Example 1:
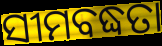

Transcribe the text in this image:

ସୀମବଦ୍ଧତା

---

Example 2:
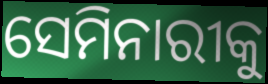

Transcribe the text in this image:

ସେମିନାରୀକୁ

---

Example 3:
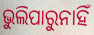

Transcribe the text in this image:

ଭୁଲିପାରୁନାହିଁ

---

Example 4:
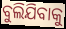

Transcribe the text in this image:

ବୁଲିଯିବାକୁ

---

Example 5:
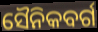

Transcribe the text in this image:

ସୈନିକବର୍ଗ